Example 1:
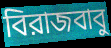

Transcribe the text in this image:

বিরাজবাবু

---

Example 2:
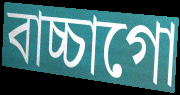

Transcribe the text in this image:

বাচ্চাগো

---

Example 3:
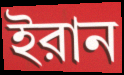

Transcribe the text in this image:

ইরান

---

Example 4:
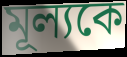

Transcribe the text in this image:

মূল্যকে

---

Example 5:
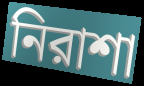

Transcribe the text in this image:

নিরাশা